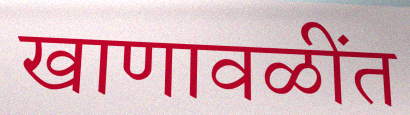
खाणावळींत